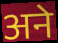
अने